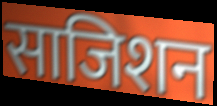
साजिशन